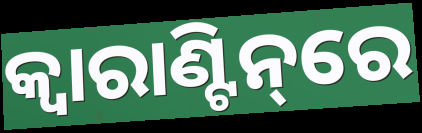
କ୍ବାରାଣ୍ଟିନ୍‌ରେ